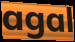
agal